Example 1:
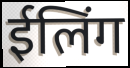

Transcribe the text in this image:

ईलिंग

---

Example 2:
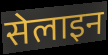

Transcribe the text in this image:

सेलाइन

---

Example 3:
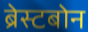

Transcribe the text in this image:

ब्रेस्टबोन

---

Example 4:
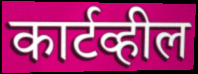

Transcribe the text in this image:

कार्टव्हील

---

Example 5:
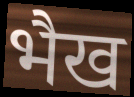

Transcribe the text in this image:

भैख